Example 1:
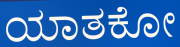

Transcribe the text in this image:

ಯಾತಕೋ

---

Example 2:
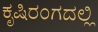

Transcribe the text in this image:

ಕೃಷಿರಂಗದಲ್ಲಿ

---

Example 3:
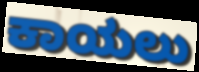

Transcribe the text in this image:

ಕಾಯಲು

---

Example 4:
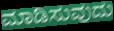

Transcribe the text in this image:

ಮಾಡಿಸುವುದು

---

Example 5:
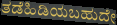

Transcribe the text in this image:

ತಡೆಹಿಡಿಯಬಹುದೇ